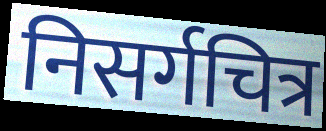
निसर्गचित्र